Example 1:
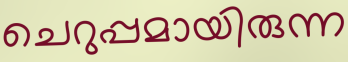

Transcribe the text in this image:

ചെറുപ്പമായിരുന്ന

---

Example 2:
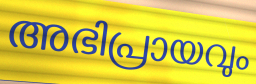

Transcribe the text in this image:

അഭിപ്രായവും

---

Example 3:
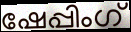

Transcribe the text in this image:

ഷേപ്പിംഗ്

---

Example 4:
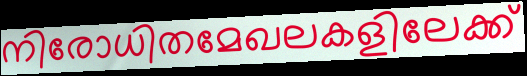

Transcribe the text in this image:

നിരോധിതമേഖലകളിലേക്ക്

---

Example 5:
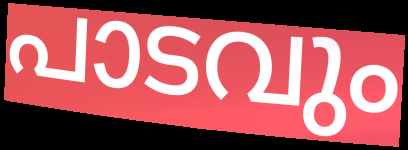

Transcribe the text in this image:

പാടവും